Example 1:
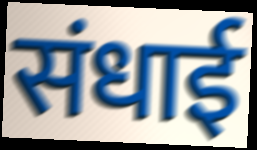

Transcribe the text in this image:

संधाई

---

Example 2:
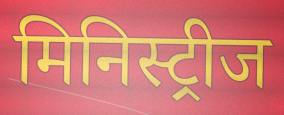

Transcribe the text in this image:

मिनिस्ट्रीज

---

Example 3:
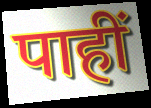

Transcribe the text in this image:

पाहीं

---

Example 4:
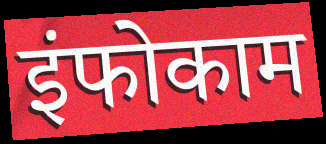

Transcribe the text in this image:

इंफोकाम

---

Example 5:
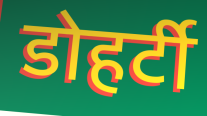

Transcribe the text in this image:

डोहर्टी